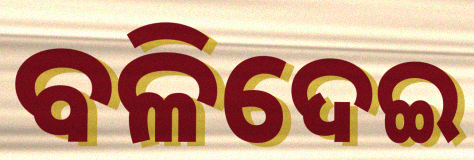
ବଳିଦେଇ